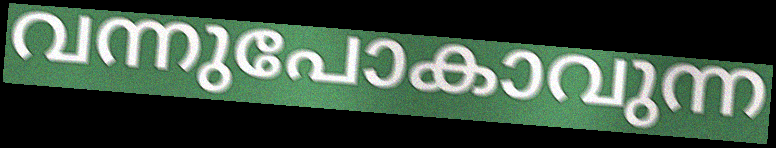
വന്നുപോകാവുന്ന